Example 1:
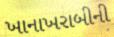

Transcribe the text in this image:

ખાનાખરાબીની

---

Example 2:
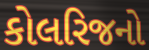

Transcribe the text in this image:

કોલરિજનો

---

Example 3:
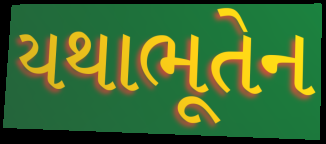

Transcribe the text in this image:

યથાભૂતેન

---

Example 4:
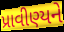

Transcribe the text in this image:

પ્રાવીણ્યને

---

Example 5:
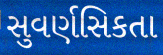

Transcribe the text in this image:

સુવર્ણસિકતા